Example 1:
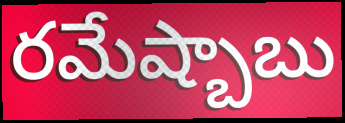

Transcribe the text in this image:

రమేష్బాబు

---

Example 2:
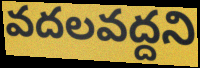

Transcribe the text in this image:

వదలవద్దని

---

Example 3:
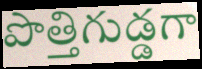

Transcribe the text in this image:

పొత్తిగుడ్డగా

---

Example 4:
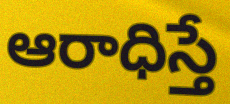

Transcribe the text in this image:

ఆరాధిస్తే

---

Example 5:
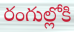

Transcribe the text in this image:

రంగుల్లోకి